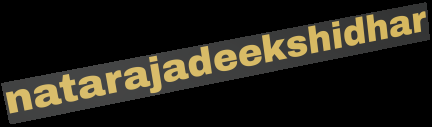
natarajadeekshidhar